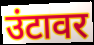
उंटावर